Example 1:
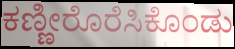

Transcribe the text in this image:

ಕಣ್ಣೀರೊರೆಸಿಕೊಂಡು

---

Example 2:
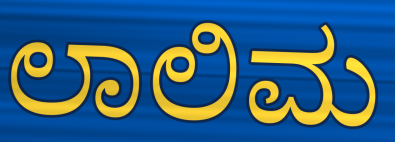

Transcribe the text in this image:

ಲಾಲಿಮ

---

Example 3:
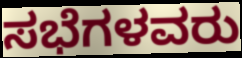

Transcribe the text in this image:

ಸಭೆಗಳವರು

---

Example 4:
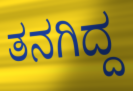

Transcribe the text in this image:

ತನಗಿದ್ದ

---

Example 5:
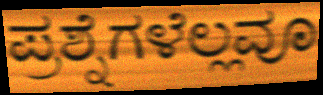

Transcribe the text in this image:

ಪ್ರಶ್ನೆಗಳೆಲ್ಲವೂ